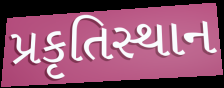
પ્રકૃતિસ્થાન